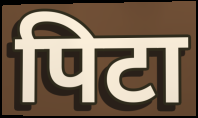
पिटा